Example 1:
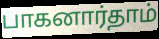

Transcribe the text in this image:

பாகனார்தாம்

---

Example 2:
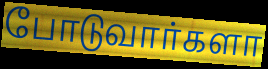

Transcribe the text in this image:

போடுவார்களா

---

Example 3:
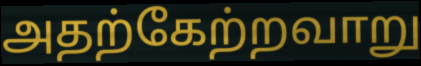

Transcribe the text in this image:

அதற்கேற்றவாறு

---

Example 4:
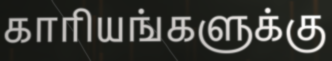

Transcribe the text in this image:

காரியங்களுக்கு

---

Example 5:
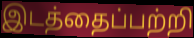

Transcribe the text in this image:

இடத்தைப்பற்றி